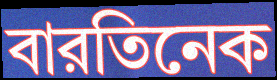
বারতিনেক